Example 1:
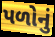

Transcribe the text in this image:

પળોનું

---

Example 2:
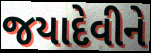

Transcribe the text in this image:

જયાદેવીને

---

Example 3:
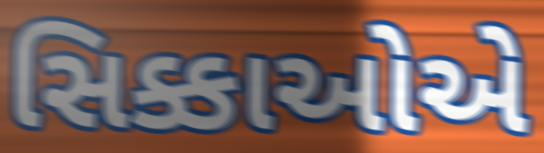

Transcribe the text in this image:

સિક્કાઓએ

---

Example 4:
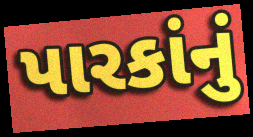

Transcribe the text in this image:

પારકાંનું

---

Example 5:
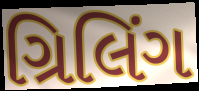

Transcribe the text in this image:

ગ્રિલિંગ